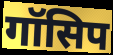
गॉसिप